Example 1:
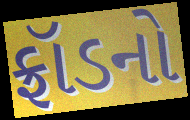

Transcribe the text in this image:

ફ્રૉડનો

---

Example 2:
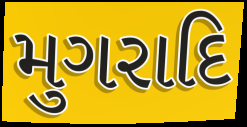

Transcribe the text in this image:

મુગરાદિ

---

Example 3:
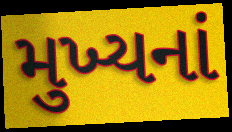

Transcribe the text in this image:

મુખ્યનાં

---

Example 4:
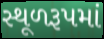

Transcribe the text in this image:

સ્થૂળરૂપમાં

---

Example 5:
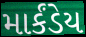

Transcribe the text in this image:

માર્કંડેય